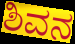
ಶಿವನ